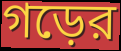
গড়ের